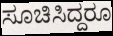
ಸೂಚಿಸಿದ್ದರೂ